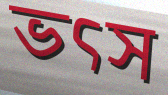
ভৎস